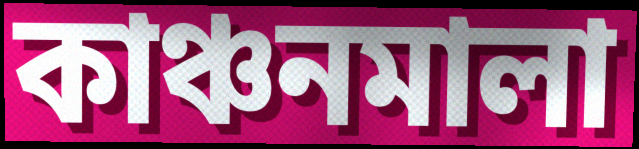
কাঞ্চনমালা